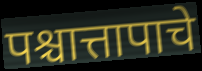
पश्चात्तापाचे